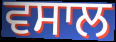
ਵਸਾਲ